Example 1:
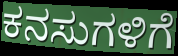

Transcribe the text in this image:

ಕನಸುಗಳಿಗೆ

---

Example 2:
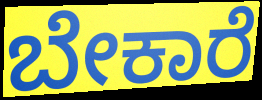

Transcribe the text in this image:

ಬೇಕಾರೆ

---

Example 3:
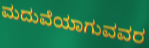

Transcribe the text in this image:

ಮದುವೆಯಾಗುವವರ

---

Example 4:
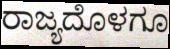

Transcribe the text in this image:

ರಾಜ್ಯದೊಳಗೂ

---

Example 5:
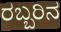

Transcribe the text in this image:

ರಬ್ಬರಿನ